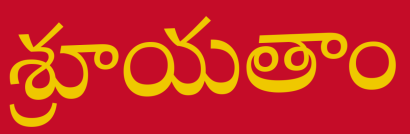
శ్రూయతాం